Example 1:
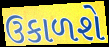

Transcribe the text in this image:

ઉકાળશે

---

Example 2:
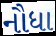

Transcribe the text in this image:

નૌધા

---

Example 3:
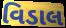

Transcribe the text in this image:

વિડાલ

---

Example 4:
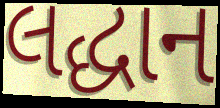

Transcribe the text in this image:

લદ્ધાન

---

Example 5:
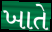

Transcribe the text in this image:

ખાતે